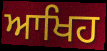
ਆਖਿਹ